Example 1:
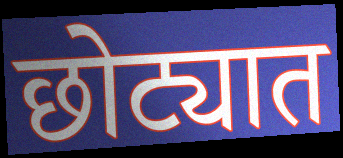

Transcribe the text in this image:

छोट्यात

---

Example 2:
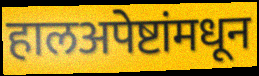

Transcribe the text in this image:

हालअपेष्टांमधून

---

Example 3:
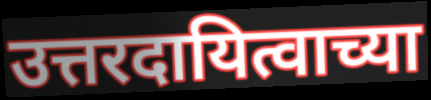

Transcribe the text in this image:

उत्तरदायित्वाच्या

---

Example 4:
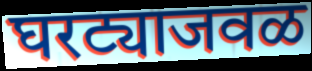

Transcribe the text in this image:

घरट्याजवळ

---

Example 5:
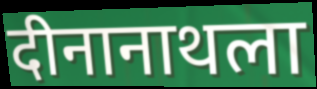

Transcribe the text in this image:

दीनानाथला